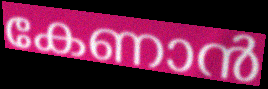
കേണാൻ